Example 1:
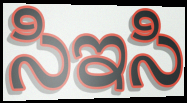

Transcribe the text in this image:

సిఇసి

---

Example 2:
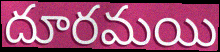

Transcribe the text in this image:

దూరమయి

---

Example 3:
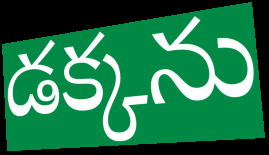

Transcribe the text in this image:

డక్కను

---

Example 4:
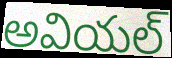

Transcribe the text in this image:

అవియల్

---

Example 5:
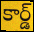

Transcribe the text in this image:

కార్డ్